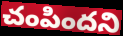
చంపిందని